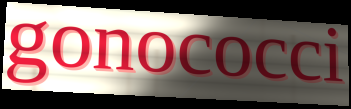
gonococci